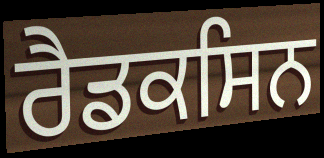
ਰੈਡਕਸਿਨ